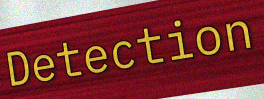
Detection